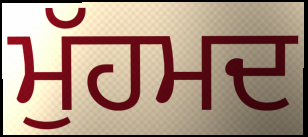
ਮੁੱਹਮਦ